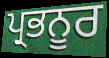
ਪ੍ਰਭਨੂਰ